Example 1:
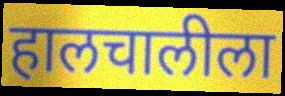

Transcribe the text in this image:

हालचालीला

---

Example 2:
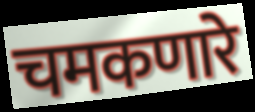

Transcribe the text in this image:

चमकणारे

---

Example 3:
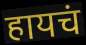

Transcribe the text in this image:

हायचं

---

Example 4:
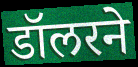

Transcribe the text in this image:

डॉलरने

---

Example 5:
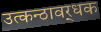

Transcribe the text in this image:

उत्कन्ठावर्धक